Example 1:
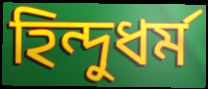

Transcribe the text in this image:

হিন্দুধৰ্ম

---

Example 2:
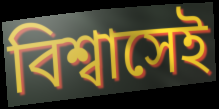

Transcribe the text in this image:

বিশ্বাসেই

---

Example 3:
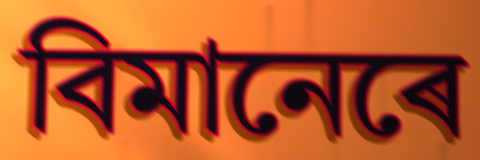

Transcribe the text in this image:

বিমানেৰে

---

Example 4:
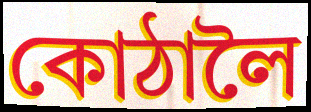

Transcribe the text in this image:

কোঠালৈ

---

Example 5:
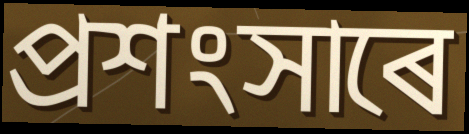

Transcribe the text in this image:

প্ৰশংসাৰে